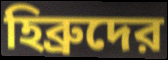
হিব্রুদের